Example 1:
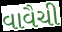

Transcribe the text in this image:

વાવૈચી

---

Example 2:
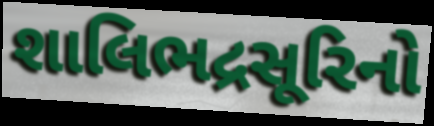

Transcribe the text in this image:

શાલિભદ્રસૂરિનો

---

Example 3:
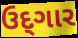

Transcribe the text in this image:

ઉદ્‌ગાર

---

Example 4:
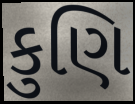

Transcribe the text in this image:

કુણિ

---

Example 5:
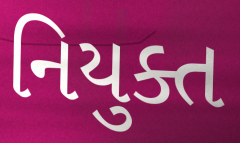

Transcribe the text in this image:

નિયુક્ત